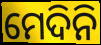
ମେଦିନି